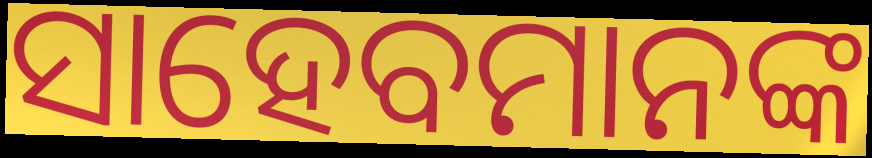
ସାହେବମାନଙ୍କ